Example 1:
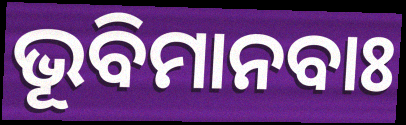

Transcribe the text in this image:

ଭୂବିମାନବାଃ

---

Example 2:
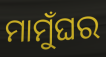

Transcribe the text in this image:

ମାମୁଁଘର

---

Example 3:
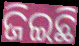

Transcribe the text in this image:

ଜିଇଛି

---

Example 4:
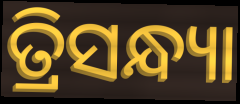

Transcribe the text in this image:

ତ୍ରିସନ୍ଧ୍ୟା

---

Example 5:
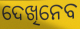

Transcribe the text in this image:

ଦେଖିନେବ